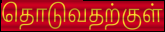
தொடுவதற்குள்